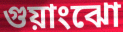
গুয়াংঝো